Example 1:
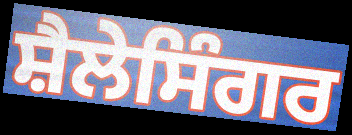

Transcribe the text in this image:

ਸ਼ੈਲੇਸਿੰਗਰ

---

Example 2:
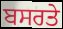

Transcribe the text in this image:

ਬਸਰਤੇ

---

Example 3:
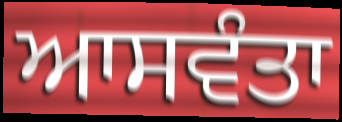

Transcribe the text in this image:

ਆਸਵੰਤਾ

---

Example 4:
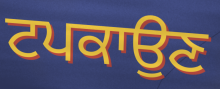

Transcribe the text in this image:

ਟਪਕਾਉਣ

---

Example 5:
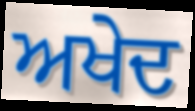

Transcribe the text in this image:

ਅਖੇਦ